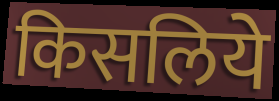
किसलिये